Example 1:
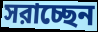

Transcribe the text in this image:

সরাচ্ছেন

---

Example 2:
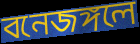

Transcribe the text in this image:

বনেজঙ্গলে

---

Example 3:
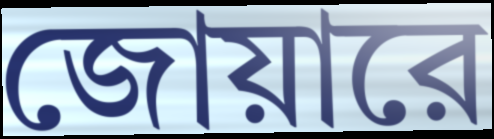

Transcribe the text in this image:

জোয়ারে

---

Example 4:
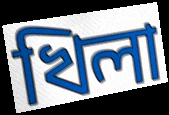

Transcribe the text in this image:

খিলা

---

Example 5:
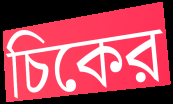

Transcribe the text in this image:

চিকের